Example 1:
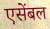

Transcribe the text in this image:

एसेंबल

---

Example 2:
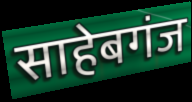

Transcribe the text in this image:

साहेबगंज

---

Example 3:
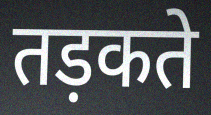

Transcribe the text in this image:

तड़कते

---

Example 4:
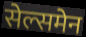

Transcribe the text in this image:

सेल्समेन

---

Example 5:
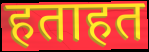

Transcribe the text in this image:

हताहत